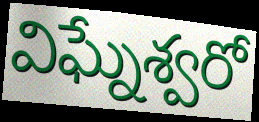
విఘ్నేశ్వరో